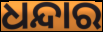
ଧନ୍ଦାର